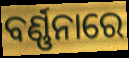
ବର୍ଣ୍ଣନାରେ